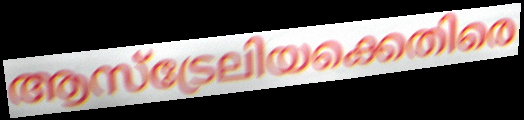
ആസ്ട്രേലിയക്കെതിരെ